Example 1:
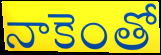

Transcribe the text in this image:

నాకెంతో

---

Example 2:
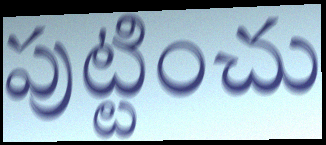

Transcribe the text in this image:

పుట్టించు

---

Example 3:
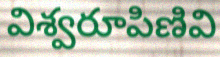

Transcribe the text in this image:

విశ్వరూపిణివి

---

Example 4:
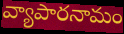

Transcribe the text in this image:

వ్యాపారనామం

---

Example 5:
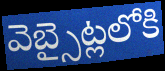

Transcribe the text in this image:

వెబ్సైట్లలోకి